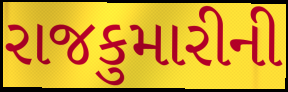
રાજકુમારીની